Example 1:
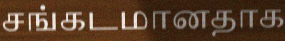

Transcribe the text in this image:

சங்கடமானதாக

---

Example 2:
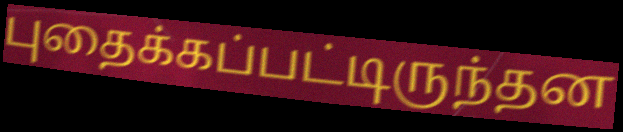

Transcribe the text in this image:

புதைக்கப்பட்டிருந்தன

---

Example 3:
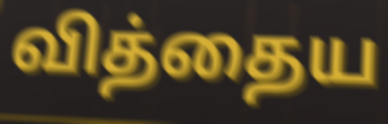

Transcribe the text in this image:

வித்தைய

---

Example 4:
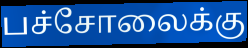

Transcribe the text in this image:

பச்சோலைக்கு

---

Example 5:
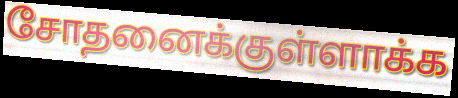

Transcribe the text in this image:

சோதனைக்குள்ளாக்க